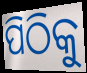
ପିଠିକୁ